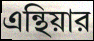
এন্থিয়ার